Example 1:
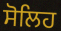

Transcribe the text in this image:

ਸੋਲਿਹ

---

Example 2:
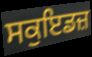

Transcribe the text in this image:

ਸਕੁਇਡਜ਼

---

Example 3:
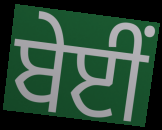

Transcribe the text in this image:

ਬੇਈਂ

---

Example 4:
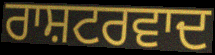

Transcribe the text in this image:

ਰਾਸ਼ਟਰਵਾਦ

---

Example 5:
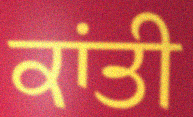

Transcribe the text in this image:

ਕਾਂਤੀ